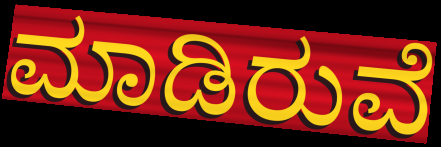
ಮಾಡಿರುವೆ